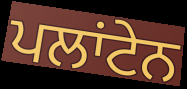
ਪਲਾਂਟੇਨ